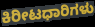
ಕಿರೀಟಧಾರಿಗಳು